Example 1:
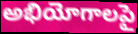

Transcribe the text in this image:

అభియోగాలపై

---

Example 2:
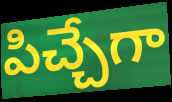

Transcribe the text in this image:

పిచ్చేగా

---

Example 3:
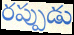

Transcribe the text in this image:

రప్పుడు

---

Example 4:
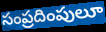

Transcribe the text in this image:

సంప్రదింపులూ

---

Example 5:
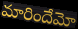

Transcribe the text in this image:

మారిందేమో